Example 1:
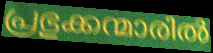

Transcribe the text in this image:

പ്രഭുക്കന്മാരിൽ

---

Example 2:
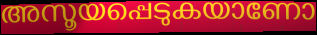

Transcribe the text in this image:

അസൂയപ്പെടുകയാണോ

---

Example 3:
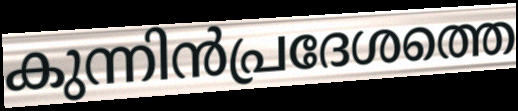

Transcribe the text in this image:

കുന്നിൻപ്രദേശത്തെ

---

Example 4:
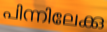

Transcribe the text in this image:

പിന്നിലേക്കു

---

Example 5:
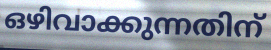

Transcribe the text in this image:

ഒഴിവാക്കുന്നതിന്